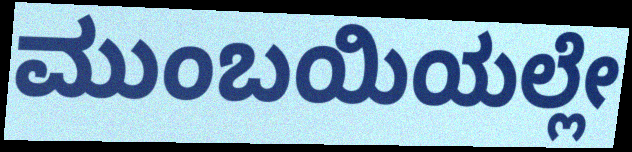
ಮುಂಬಯಿಯಲ್ಲೇ